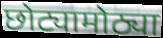
छोट्यामोठ्या